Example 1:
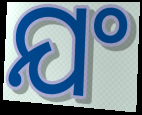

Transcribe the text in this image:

ଯଂ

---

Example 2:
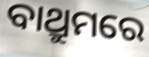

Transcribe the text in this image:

ବାଥ୍ରୁମରେ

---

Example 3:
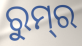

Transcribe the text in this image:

ରୁମ୍‌ର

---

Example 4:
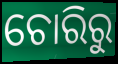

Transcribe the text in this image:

ଚୋରିରୁ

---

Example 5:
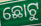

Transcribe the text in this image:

ଛୋଟୁ